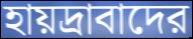
হায়দ্রাবাদের